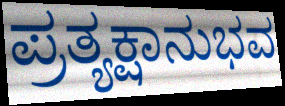
ಪ್ರತ್ಯಕ್ಷಾನುಭವ